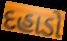
દહાડો